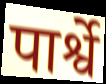
पार्श्वे